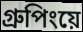
গ্রুপিংয়ে